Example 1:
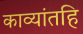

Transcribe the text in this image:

काव्यांतहि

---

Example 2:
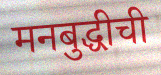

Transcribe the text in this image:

मनबुद्धीची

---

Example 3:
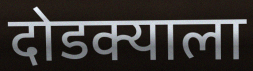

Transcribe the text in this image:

दोडक्याला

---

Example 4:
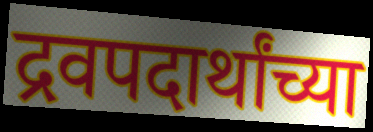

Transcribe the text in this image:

द्रवपदार्थांच्या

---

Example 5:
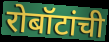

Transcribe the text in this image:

रोबॉटांची